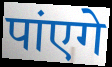
पांएगे